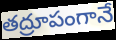
తద్రూపంగానే